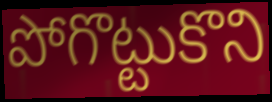
పోగొట్టుకొని